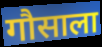
गौसाला